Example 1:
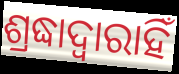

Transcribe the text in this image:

ଶ୍ରଦ୍ଧାଦ୍ୱାରାହିଁ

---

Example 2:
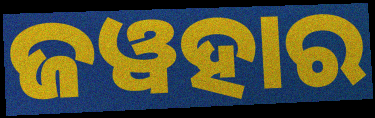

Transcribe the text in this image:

ଜୱହାର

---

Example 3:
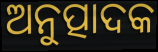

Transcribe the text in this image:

ଅନୁତ୍ପାଦକ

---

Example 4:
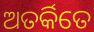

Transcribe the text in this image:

ଅତର୍କିତେ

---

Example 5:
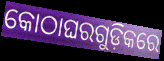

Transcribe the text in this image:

କୋଠାଘରଗୁଡ଼ିକରେ